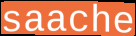
saache